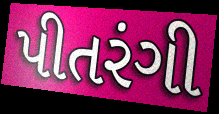
પીતરંગી